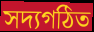
সদ্যগঠিত